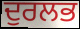
ਦੁਰਲਭ